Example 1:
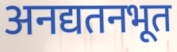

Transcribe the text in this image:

अनद्यतनभूत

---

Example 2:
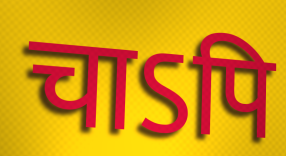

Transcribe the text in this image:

चाऽपि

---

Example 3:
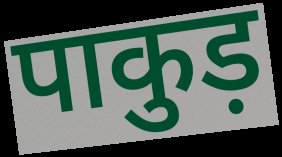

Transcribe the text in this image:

पाकुड़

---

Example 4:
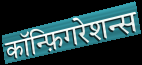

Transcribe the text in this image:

कॉन्फ़िगरेशन्स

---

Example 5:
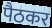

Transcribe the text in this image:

पैठकर